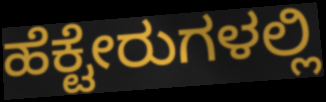
ಹೆಕ್ಟೇರುಗಳಲ್ಲಿ